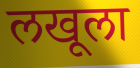
लखूला